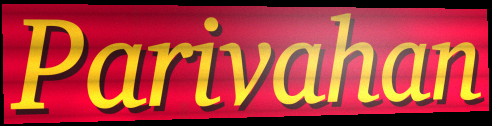
Parivahan